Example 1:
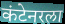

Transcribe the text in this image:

कंटेनरला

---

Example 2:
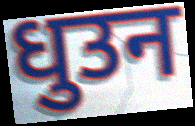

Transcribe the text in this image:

धुउन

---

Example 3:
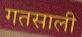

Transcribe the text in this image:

गतसाली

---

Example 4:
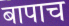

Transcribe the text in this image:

बापाच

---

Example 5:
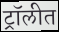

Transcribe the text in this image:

ट्रॉलीत